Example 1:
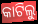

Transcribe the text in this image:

କାଟିଲୁ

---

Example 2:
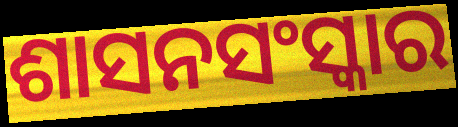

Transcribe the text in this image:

ଶାସନସଂସ୍କାର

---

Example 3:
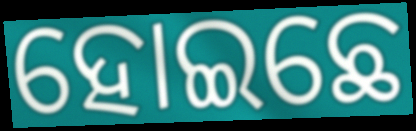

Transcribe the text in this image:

ହୋଇଛେ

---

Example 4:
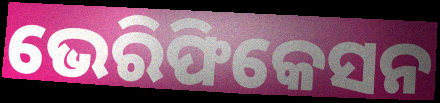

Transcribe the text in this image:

ଭେରିଫିକେସନ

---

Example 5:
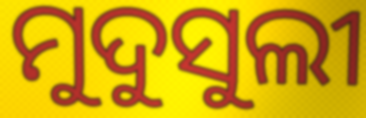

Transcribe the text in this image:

ମୁଦୁସୁଲୀ